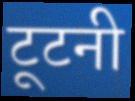
टूटनी